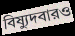
বিষ্যুদবারও